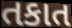
તકાત